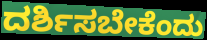
ದರ್ಶಿಸಬೇಕೆಂದು